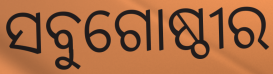
ସବୁଗୋଷ୍ଠୀର